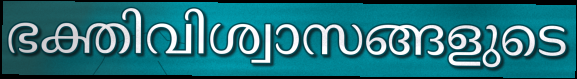
ഭക്തിവിശ്വാസങ്ങളുടെ